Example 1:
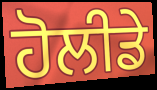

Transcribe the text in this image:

ਹੋਲੀਡੇ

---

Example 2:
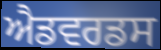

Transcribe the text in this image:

ਐਡਵਰਡਸ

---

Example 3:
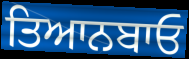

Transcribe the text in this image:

ਤਿਆਨਬਾਓ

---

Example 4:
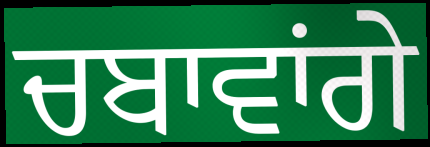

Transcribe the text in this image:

ਚਬਾਵਾਂਗੇ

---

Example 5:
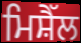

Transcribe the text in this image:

ਮਿਸ਼ੈੱਲ